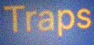
Traps